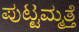
ಪುಟ್ಟಮ್ಮತ್ತೆ